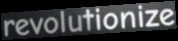
revolutionize